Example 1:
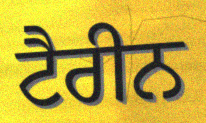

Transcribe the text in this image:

ਟੈਰੀਨ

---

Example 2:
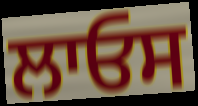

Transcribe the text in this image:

ਲਾਓਸ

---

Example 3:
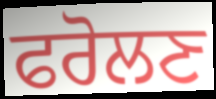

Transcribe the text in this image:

ਫਰੋਲਣ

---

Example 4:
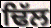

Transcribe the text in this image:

ਢਿੱਲ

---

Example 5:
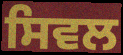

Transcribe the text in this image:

ਸਿਵਲ